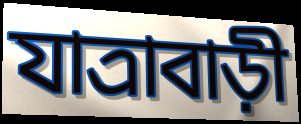
যাত্রাবাড়ী